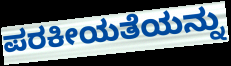
ಪರಕೀಯತೆಯನ್ನು